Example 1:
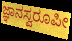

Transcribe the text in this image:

ಜ್ಞಾನಸ್ವರೂಪೀ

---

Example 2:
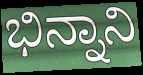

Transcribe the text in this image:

ಭಿನ್ನಾನಿ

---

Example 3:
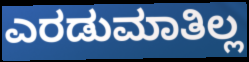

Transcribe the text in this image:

ಎರಡುಮಾತಿಲ್ಲ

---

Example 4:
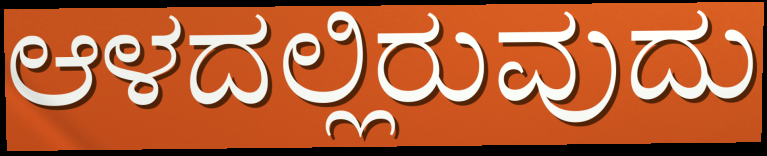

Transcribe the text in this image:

ಆಳದಲ್ಲಿರುವುದು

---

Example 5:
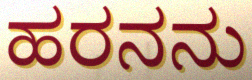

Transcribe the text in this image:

ಹರನನು